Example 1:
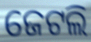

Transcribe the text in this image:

ଜେଟଲି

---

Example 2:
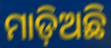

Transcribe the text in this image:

ମାଡ଼ିଅଛି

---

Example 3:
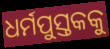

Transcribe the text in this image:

ଧର୍ମପୁସ୍ତକକୁ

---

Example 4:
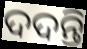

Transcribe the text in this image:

ଦଦନ୍ତି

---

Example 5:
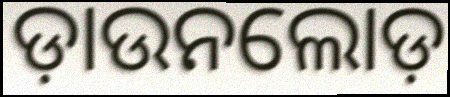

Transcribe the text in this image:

ଡ଼ାଉନଲୋଡ଼